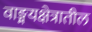
वाङ्मयक्षेत्रातील